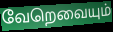
வேறெவையும்